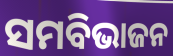
ସମବିଭାଜନ